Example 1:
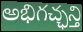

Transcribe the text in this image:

అభిగచ్ఛన్తి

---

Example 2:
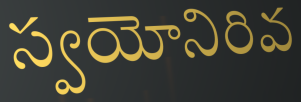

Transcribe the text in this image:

స్వయోనిరివ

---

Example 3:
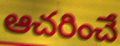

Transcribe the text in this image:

ఆచరించే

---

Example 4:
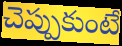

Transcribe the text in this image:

చెప్పుకుంటే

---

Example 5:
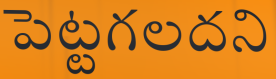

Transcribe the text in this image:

పెట్టగలదని